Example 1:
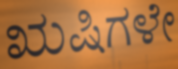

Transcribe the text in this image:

ಋಷಿಗಳೇ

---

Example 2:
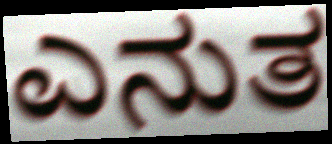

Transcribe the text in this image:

ಎನುತ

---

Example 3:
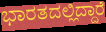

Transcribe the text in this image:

ಭಾರತದಲ್ಲಿದ್ದಾರೆ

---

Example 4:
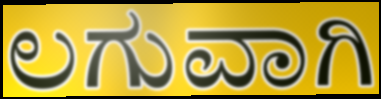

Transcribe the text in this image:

ಲಗುವಾಗಿ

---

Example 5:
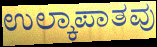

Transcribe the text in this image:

ಉಲ್ಕಾಪಾತವು